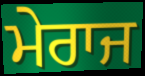
ਮੇਰਾਜ